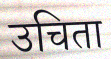
उचिता